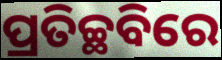
ପ୍ରତିଚ୍ଛବିରେ